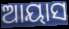
ଆୟାସ